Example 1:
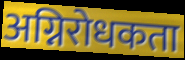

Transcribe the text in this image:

अग्निरोधकता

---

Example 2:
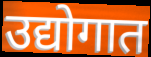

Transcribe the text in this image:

उद्योगात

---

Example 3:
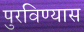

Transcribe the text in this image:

पुरविण्यास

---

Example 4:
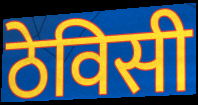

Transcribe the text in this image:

ठेविसी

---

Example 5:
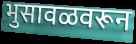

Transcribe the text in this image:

भुसावळवरून